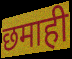
छमाही